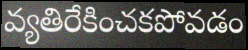
వ్యతిరేకించకపోవడం